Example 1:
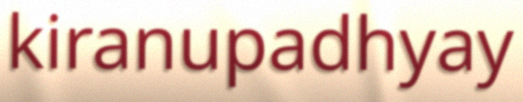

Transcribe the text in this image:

kiranupadhyay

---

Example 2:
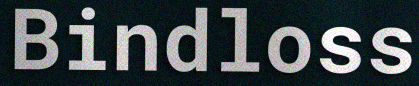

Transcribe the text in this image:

Bindloss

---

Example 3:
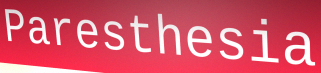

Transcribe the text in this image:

Paresthesia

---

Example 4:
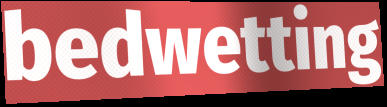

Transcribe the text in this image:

bedwetting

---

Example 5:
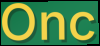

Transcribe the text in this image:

Onc